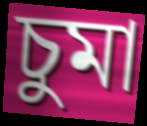
চুমা